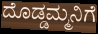
ದೊಡ್ಡಮ್ಮನಿಗೆ